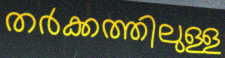
തർക്കത്തിലുള്ള